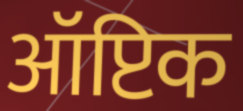
ऑप्टिक